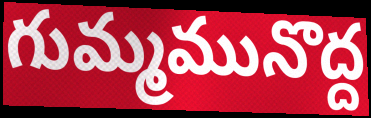
గుమ్మమునొద్ద